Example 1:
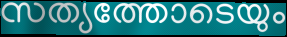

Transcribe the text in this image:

സത്യത്തോടെയും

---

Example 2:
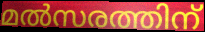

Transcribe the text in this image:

മൽസരത്തിന്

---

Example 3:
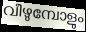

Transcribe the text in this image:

വീഴുമ്പോളും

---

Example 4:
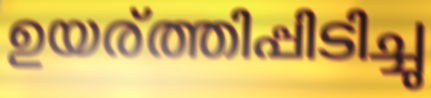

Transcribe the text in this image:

ഉയര്ത്തിപ്പിടിച്ചു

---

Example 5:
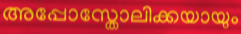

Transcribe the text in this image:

അപ്പോസ്തോലിക്കയായും